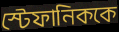
স্টেফানিককে